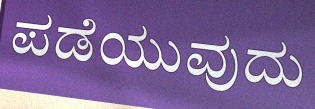
ಪಡೆಯುವುದು